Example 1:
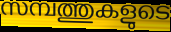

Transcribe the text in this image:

സമ്പത്തുകളുടെ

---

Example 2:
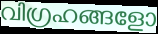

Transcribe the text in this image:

വിഗ്രഹങ്ങളോ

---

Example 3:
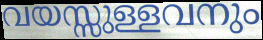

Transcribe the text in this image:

വയസ്സുള്ളവനും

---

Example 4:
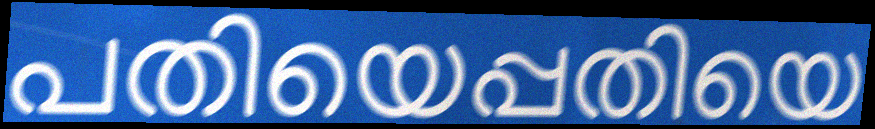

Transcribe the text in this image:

പതിയെപ്പതിയെ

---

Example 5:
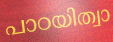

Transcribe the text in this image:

പാഠയിത്വാ